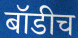
बॉडीच